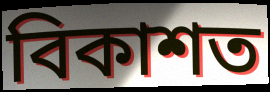
বিকাশত